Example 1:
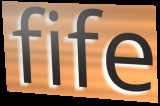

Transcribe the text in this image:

fife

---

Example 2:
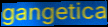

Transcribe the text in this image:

gangetica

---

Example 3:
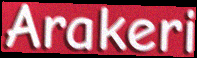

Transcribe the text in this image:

Arakeri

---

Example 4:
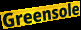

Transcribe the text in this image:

Greensole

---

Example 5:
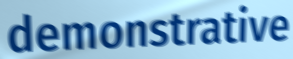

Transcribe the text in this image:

demonstrative